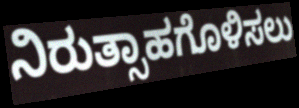
ನಿರುತ್ಸಾಹಗೊಳಿಸಲು